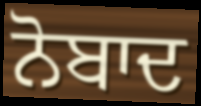
ਨੋਬਾਦ